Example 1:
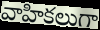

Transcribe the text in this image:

వాహికలుగా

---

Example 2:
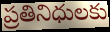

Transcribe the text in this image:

ప్రతినిధులకు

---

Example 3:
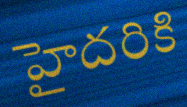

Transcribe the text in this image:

హైదరికి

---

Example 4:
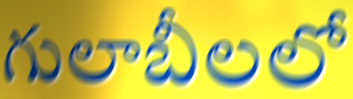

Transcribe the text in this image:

గులాబీలలో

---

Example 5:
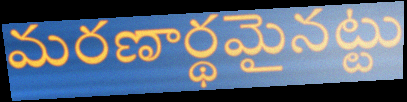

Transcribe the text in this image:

మరణార్థమైనట్టు